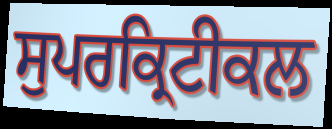
ਸੁਪਰਕ੍ਰਿਟੀਕਲ